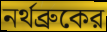
নর্থব্রুকের